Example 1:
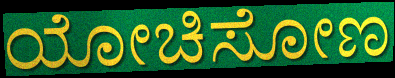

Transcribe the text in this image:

ಯೋಚಿಸೋಣ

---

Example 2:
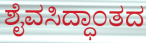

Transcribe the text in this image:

ಶೈವಸಿದ್ಧಾಂತದ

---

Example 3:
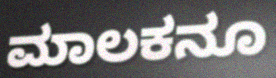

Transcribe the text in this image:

ಮಾಲಕನೂ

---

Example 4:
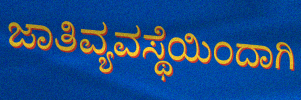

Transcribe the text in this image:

ಜಾತಿವ್ಯವಸ್ಥೆಯಿಂದಾಗಿ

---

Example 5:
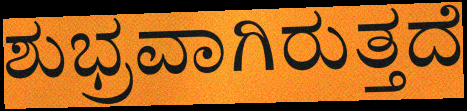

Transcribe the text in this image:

ಶುಭ್ರವಾಗಿರುತ್ತದೆ